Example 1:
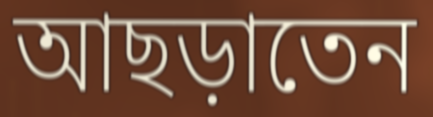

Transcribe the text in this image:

আছড়াতেন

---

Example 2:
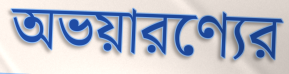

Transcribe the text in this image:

অভয়ারণ্যের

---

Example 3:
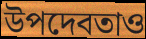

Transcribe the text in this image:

উপদেবতাও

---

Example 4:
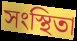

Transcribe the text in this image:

সংস্থিতা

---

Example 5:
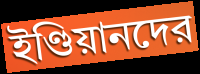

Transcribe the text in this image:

ইণ্ডিয়ানদের